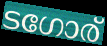
ടഗോര്